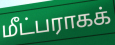
மீட்பராகக்